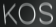
KOS